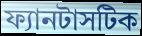
ফ্যানটাসটিক